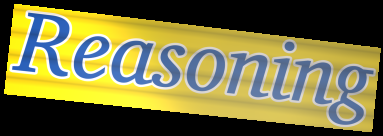
Reasoning